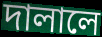
দালালে